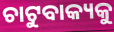
ଚାଟୁବାକ୍ୟକୁ